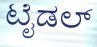
ಟೈಡಲ್